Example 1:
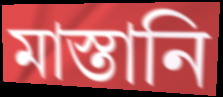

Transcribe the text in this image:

মাস্তানি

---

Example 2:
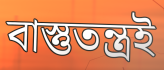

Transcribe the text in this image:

বাস্তুতন্ত্রই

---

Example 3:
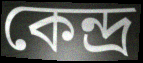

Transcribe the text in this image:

কেন্দ্র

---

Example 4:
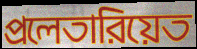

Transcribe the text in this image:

প্রলেতারিয়েত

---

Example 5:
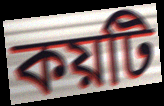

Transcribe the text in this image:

কয়টি